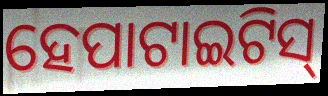
ହେପାଟାଇଟିସ୍